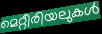
മെറ്റീരിയലുകൾ